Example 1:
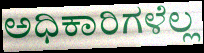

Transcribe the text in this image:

ಅಧಿಕಾರಿಗಳೆಲ್ಲ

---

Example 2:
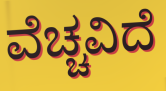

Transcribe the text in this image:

ವೆಚ್ಚವಿದೆ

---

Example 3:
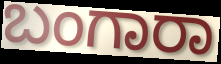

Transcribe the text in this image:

ಬಂಗಾರಾ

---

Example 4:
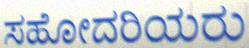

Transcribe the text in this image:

ಸಹೋದರಿಯರು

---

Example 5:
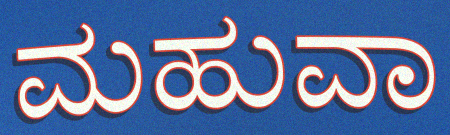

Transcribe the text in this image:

ಮಹುವಾ